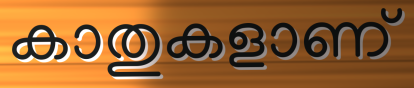
കാതുകളാണ്